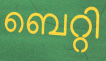
ബെറ്റി